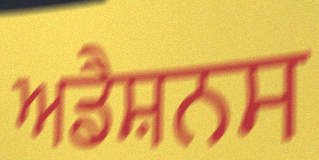
ਅਡੈਸ਼ਨਸ